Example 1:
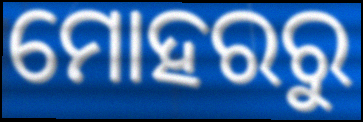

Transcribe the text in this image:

ମୋହରରୁ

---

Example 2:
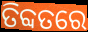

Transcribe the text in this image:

ତିବ୍ଦତରେ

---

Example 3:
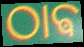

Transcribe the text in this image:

ଠାଵ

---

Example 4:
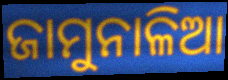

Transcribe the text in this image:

ଜାମୁନାଳିଆ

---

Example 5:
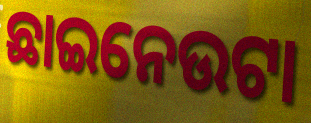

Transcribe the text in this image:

ଛାଇନେଉଟା